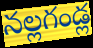
నల్లగండ్ల